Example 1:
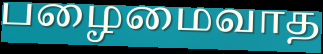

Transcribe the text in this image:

பழைமைவாத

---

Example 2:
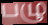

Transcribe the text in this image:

பழு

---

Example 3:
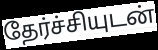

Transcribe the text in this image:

தேர்ச்சியுடன்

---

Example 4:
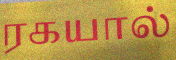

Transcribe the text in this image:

ரகயால்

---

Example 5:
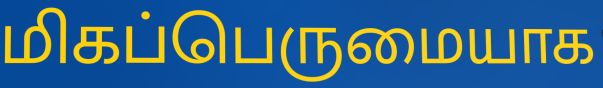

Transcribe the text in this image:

மிகப்பெருமையாக